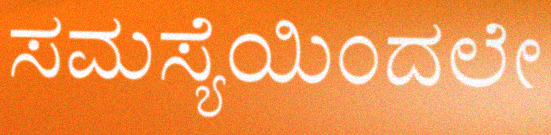
ಸಮಸ್ಯೆಯಿಂದಲೇ